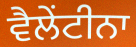
ਵੈਲੇਂਟੀਨਾ